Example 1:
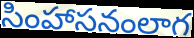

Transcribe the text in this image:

సింహాసనంలాగ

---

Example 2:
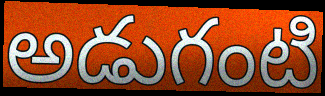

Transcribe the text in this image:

అడుగంటి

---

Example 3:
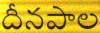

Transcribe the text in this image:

దీనపాల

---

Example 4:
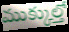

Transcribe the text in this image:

ముక్కుల్తో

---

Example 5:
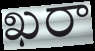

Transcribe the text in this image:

ఖరా